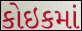
કોઇકમાં